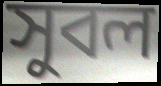
সুবল